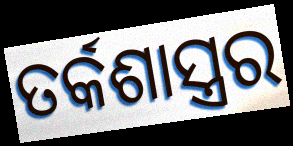
ତର୍କଶାସ୍ତ୍ରର